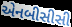
એનબીસીસી